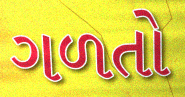
ગળતો